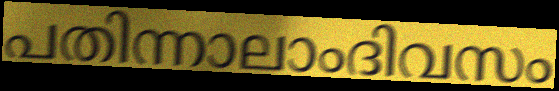
പതിന്നാലാംദിവസം